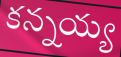
కన్నయ్య